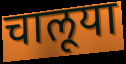
चालूया